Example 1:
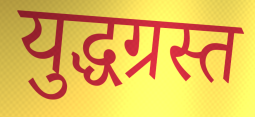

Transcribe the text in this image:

युद्धग्रस्त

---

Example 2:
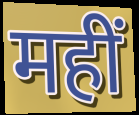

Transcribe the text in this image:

महीं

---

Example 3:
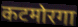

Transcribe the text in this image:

कटमोरगा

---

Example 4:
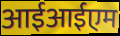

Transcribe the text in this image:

आईआईएम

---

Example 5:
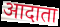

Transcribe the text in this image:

आदाता